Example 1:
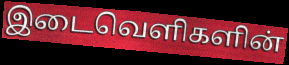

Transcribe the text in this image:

இடைவெளிகளின்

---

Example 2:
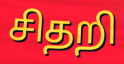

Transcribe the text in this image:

சிதறி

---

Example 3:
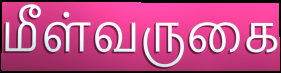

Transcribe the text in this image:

மீள்வருகை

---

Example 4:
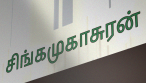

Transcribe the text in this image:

சிங்கமுகாசுரன்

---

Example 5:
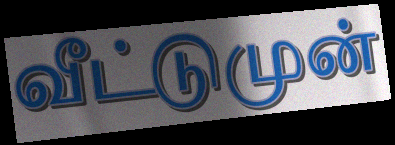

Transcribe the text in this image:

வீட்டுமுன்